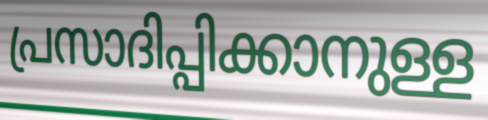
പ്രസാദിപ്പിക്കാനുള്ള